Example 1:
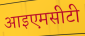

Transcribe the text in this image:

आइएमसीटी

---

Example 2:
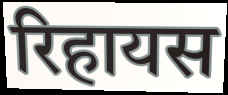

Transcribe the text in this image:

रिहायस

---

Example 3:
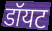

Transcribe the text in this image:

डॉयट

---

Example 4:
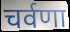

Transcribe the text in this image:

चर्वणा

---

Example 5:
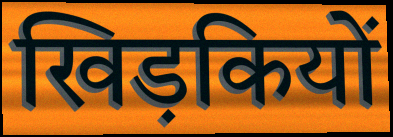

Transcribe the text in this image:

खिड़कियों